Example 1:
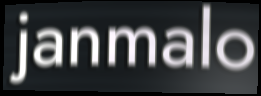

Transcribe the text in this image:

janmalo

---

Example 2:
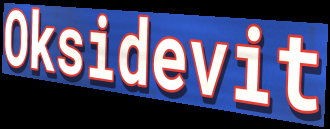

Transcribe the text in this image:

Oksidevit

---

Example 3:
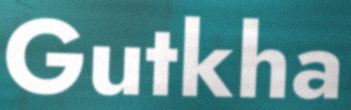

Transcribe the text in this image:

Gutkha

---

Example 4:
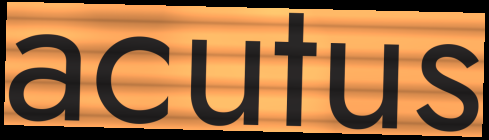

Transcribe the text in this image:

acutus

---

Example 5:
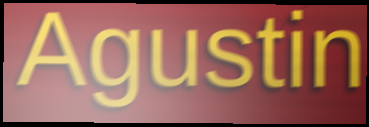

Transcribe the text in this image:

Agustin